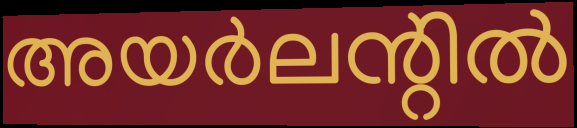
അയർലന്റിൽ